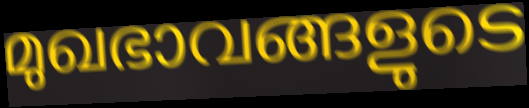
മുഖഭാവങ്ങളുടെ